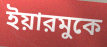
ইয়ারমুকে